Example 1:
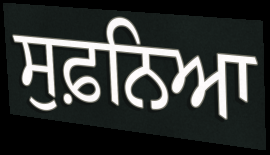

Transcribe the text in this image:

ਸੁਫ਼ਨਿਆ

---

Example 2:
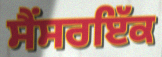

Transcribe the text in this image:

ਸੈਂਸਰਇੱਕ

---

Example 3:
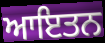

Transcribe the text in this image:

ਆਇਤਨ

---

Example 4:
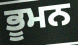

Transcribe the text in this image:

ਭੂਮਨ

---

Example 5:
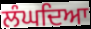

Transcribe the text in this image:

ਲੰਘਦਿਆ